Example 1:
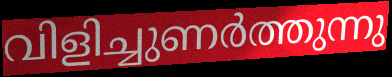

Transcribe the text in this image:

വിളിച്ചുണർത്തുന്നു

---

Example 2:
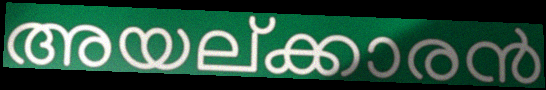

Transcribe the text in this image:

അയല്ക്കാരൻ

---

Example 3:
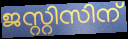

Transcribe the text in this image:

ജസ്റ്റിസിന്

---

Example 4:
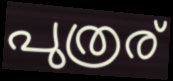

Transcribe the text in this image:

പുത്രര്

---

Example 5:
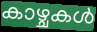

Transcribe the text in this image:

കാഴ്ചകൾ